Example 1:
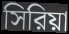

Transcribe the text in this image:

সিরিয়া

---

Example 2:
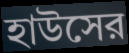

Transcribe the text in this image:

হাউসের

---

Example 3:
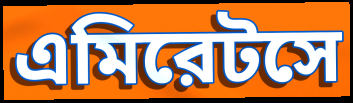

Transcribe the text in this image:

এমিরেটসে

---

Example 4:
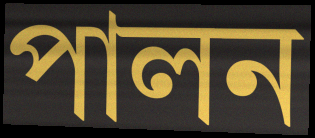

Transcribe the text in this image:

পালন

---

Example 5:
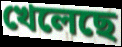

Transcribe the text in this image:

খেলেছে